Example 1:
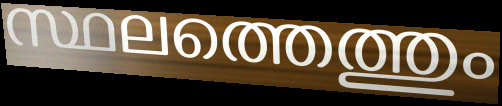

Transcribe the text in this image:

സ്ഥലത്തെത്തും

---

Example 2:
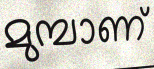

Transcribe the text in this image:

മുമ്പാണ്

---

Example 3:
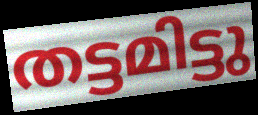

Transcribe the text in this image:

തട്ടമിട്ടു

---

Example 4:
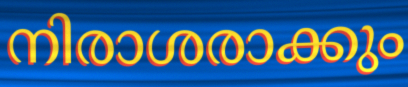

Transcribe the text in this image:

നിരാശരാക്കും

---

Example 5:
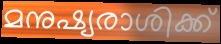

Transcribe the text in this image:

മനുഷ്യരാശിക്ക്